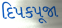
દિપકપૂજા